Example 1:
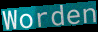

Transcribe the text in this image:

Worden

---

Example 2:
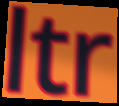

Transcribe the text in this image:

ltr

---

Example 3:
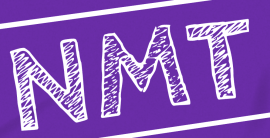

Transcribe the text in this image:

NMT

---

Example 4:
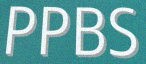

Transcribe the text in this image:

PPBS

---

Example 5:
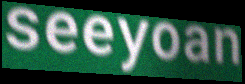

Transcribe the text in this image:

seeyoan